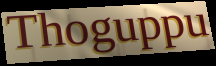
Thoguppu